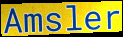
Amsler